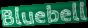
Bluebell